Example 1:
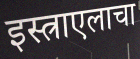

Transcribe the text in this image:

इस्त्राएलाचा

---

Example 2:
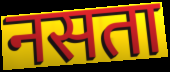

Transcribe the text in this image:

नसता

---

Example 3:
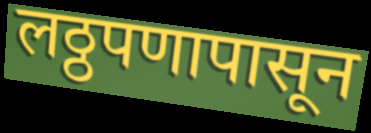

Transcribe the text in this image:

लठ्ठपणापासून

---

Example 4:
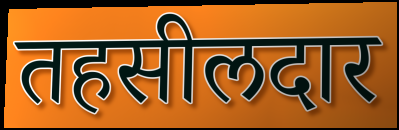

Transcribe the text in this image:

तहसीलदार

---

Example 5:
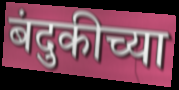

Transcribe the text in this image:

बंदुकीच्या